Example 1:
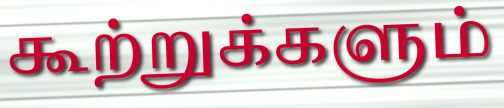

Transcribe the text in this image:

கூற்றுக்களும்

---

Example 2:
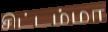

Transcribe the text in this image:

சிட்டம்மா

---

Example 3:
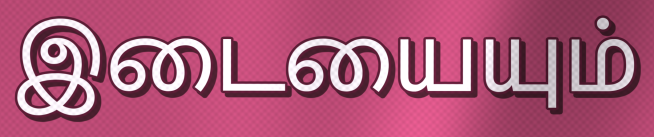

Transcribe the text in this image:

இடையையும்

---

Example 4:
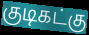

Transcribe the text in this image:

குடிகட்கு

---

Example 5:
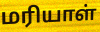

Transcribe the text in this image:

மரியாள்